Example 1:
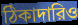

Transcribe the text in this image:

ঠিকাদারিও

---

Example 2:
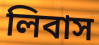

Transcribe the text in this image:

লিবাস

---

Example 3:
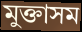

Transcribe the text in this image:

মুক্তাসম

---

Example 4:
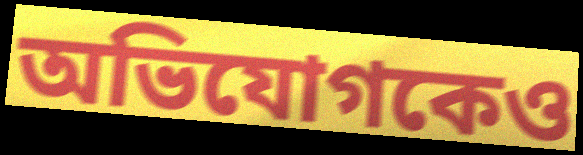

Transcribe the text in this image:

অভিযোগকেও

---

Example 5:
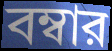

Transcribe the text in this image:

বম্বার